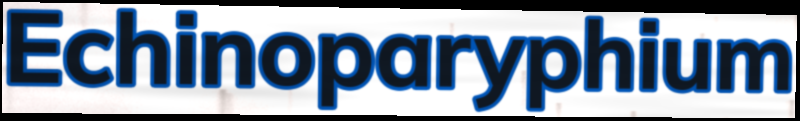
Echinoparyphium